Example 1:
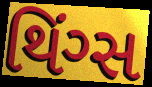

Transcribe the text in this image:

થિંગ્સ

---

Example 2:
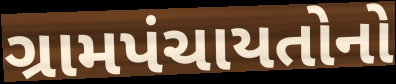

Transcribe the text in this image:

ગ્રામપંચાયતોનો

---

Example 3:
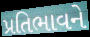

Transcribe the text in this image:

પ્રતિભાવને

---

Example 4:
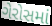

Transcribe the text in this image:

ગેરોસમાં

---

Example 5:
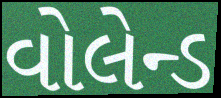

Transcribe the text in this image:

વોલેન્ડ